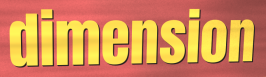
dimension